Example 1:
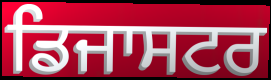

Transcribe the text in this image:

ਡਿਜਾਸਟਰ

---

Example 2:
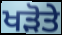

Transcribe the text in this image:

ਖੜੋਤੇ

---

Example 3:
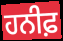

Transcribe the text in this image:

ਹਨੀਫ਼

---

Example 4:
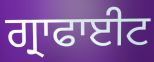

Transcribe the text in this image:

ਗ੍ਰਾਫਾਈਟ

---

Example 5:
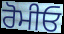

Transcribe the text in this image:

ਰੋਮੀਓ